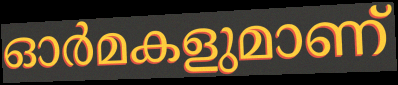
ഓർമകളുമാണ്